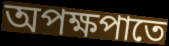
অপক্ষপাতে